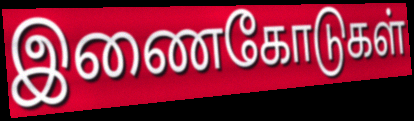
இணைகோடுகள்